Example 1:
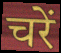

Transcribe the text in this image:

चरें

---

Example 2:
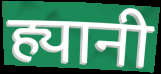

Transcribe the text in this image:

ह्यानी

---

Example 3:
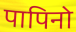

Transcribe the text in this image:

पापिनो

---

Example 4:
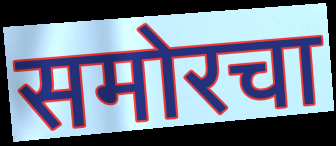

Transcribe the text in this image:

समोरचा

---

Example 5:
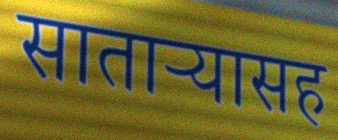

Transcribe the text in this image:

साताऱ्यासह